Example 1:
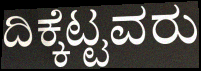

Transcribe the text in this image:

ದಿಕ್ಕೆಟ್ಟವರು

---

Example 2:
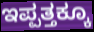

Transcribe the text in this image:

ಇಪ್ಪತ್ತಕ್ಕೂ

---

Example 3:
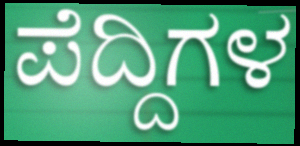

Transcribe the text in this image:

ಪೆದ್ದಿಗಳ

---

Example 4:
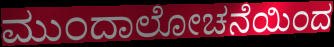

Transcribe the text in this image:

ಮುಂದಾಲೋಚನೆಯಿಂದ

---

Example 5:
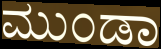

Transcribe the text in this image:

ಮುಂಡಾ